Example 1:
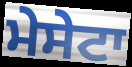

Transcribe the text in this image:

ਮੇਸੇਟਾ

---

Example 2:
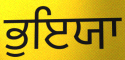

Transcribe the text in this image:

ਭੁਇਯਾ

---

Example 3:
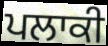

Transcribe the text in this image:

ਪਲਾਕੀ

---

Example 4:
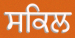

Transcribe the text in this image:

ਸਕਿਲ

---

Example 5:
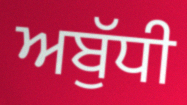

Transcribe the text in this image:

ਅਬੁੱਧੀ